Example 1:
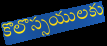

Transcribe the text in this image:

కొలొస్సయులకు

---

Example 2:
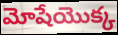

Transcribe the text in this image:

మోషేయొక్క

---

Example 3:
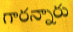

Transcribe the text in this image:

గారన్నారు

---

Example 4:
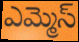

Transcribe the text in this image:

ఎమ్మెస్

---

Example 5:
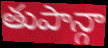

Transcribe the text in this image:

తుపాన్గా